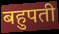
बहुपती